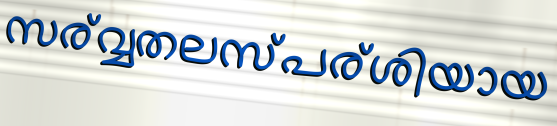
സര്വ്വതലസ്പര്ശിയായ